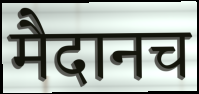
मैदानच